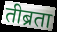
तीब्रता